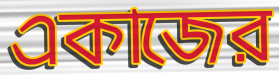
একাজের